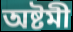
অষ্টমী